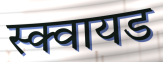
स्क्वायड